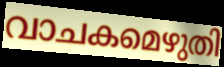
വാചകമെഴുതി